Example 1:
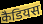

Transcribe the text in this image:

कैडियस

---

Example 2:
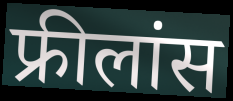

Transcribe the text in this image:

फ्रीलांस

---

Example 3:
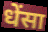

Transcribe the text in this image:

धेंसा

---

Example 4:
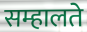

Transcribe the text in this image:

सम्हालते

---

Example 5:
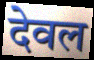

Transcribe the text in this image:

देवल